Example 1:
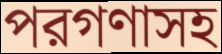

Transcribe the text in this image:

পরগণাসহ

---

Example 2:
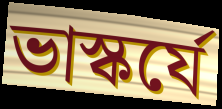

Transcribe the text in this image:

ভাস্কর্যে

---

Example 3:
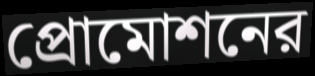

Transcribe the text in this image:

প্রোমোশনের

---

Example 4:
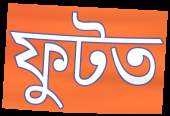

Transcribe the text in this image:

ফুটত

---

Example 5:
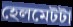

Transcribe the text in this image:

হেলমেটটা